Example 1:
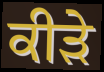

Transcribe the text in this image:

ਕੀੜੇ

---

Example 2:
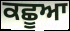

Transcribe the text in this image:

ਕਛੂਆ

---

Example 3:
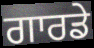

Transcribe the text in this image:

ਗਾਰਡੇ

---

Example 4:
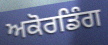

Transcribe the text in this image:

ਅਕੋਰਡਿੰਗ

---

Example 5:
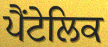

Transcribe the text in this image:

ਪੈਂਟੇਲਿਕ